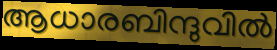
ആധാരബിന്ദുവിൽ